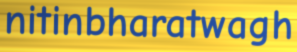
nitinbharatwagh